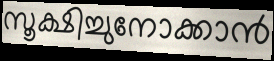
സൂക്ഷിച്ചുനോക്കാൻ